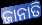
ଜାନାତି